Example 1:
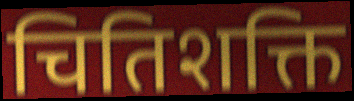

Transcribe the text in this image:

चितिशक्ति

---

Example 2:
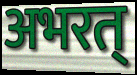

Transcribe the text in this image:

अभरत्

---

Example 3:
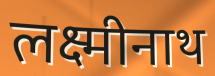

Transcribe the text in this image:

लक्ष्मीनाथ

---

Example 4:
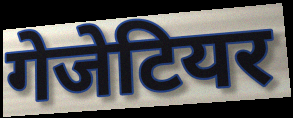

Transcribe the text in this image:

गेजेटियर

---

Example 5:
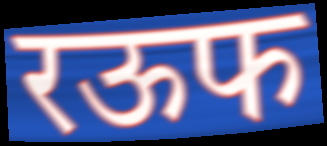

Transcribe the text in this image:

रऊफ